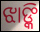
ଝାଙ୍କି